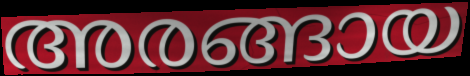
അരങ്ങായ